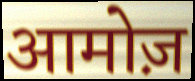
आमोज़